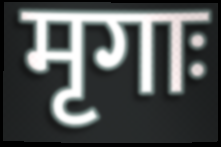
मृगाः